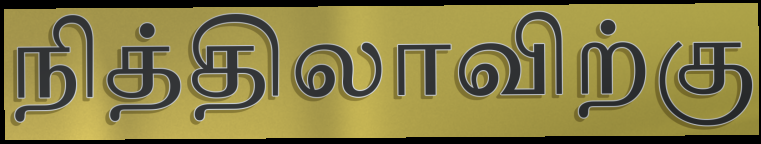
நித்திலாவிற்கு